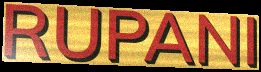
RUPANI